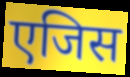
एजिस